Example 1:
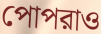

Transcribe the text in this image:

পোপরাও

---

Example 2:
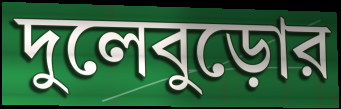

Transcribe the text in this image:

দুলেবুড়োর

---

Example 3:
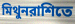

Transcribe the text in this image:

মিথুনরাশিতে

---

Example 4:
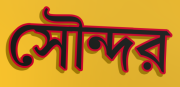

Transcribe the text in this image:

সৌন্দর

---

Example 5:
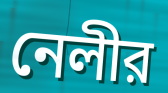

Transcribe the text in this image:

নেলীর